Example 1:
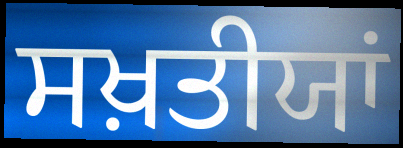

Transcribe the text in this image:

ਸਖ਼ਤੀਯਾਂ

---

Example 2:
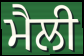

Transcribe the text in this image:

ਮੈਲੀ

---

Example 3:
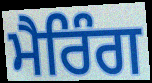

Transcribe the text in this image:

ਮੈਰਿੰਗ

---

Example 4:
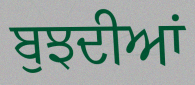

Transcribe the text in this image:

ਬੁਝਦੀਆਂ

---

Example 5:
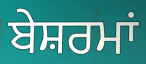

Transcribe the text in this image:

ਬੇਸ਼ਰਮਾਂ